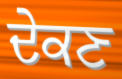
ਦੇਕਣ